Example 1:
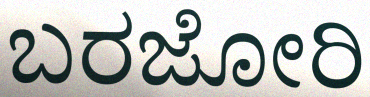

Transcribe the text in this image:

ಬರಜೋರಿ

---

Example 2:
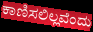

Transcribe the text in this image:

ಕಾಣಿಸಲಿಲ್ಲವೆಂದು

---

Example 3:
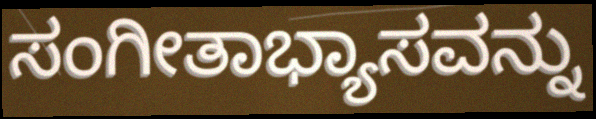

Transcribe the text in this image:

ಸಂಗೀತಾಭ್ಯಾಸವನ್ನು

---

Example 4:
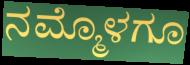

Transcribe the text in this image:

ನಮ್ಮೊಳಗೂ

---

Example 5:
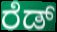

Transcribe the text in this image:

ರೆಡ್